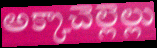
అక్కాచెల్లెల్లు